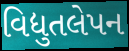
વિદ્યુતલેપન